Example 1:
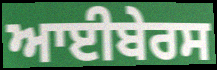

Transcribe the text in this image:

ਆਈਬੇਰਸ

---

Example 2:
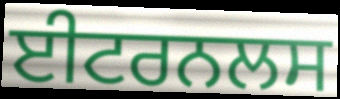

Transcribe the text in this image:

ਈਟਰਨਲਸ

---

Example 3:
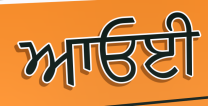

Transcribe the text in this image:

ਆਓਈ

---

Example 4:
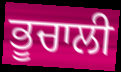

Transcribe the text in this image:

ਭੂਚਾਲੀ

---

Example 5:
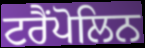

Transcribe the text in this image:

ਟਰੈਂਪੋਲਿਨ